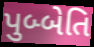
પુબ્બેતિ